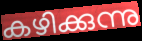
കഴിക്കുന്നു